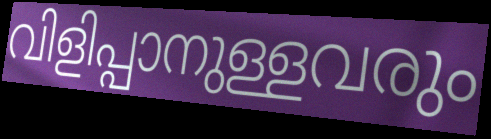
വിളിപ്പാനുള്ളവരും